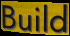
Build